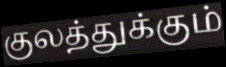
குலத்துக்கும்